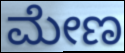
ಮೇಣ